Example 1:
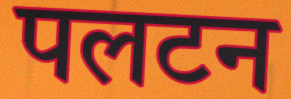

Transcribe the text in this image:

पलटन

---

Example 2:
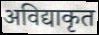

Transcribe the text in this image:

अविद्याकृत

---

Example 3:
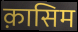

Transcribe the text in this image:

क़ासिम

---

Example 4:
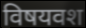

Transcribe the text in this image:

विषयवश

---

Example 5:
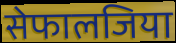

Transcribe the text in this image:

सेफालजिया